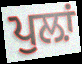
ਪੁਲ਼ਾਂ